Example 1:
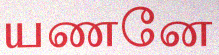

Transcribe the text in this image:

யணனே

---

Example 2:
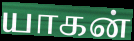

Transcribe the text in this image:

யாகன்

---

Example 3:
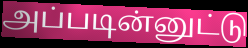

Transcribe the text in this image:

அப்படின்னுட்டு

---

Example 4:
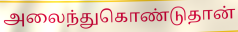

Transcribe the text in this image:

அலைந்துகொண்டுதான்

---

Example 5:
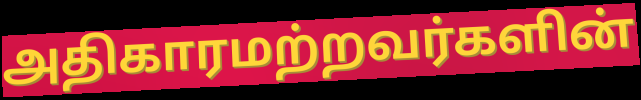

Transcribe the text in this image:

அதிகாரமற்றவர்களின்